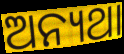
ଅନ୍ୟଥା